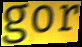
gor